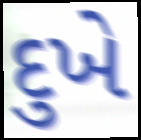
દુખે